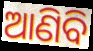
ଆଣିବି